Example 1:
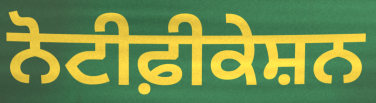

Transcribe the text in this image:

ਨੋਟੀਫ਼ੀਕੇਸ਼ਨ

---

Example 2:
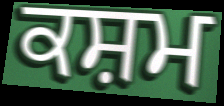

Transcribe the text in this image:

ਕਸ਼ਮ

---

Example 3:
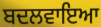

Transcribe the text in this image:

ਬਦਲਵਾਇਆ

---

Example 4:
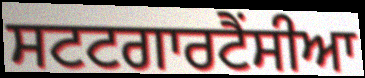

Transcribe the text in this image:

ਸਟਟਗਾਰਟੈਂਸੀਆ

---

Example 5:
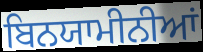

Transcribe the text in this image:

ਬਿਨਯਾਮੀਨੀਆਂ